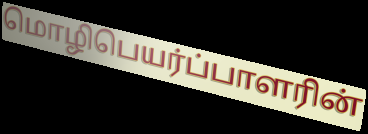
மொழிபெயர்ப்பாளரின்